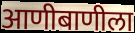
आणीबाणीला